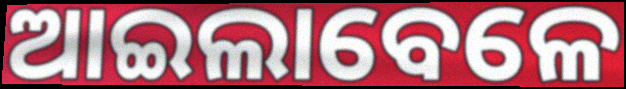
ଆଇଲାବେଳେ